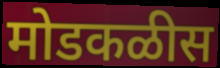
मोडकळीस